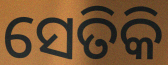
ସେତିକି